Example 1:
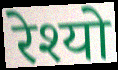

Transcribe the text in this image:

रेश्यो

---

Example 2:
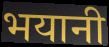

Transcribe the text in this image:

भयानी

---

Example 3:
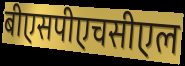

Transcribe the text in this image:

बीएसपीएचसीएल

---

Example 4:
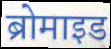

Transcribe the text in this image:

ब्रोमाइड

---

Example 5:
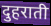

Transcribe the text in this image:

दुहराती